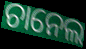
ଚାନେଲ